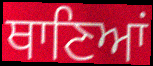
ਥਾਣਿਆਂ